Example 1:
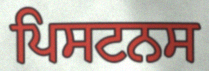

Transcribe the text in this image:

ਪਿਸਟਨਸ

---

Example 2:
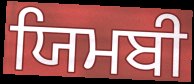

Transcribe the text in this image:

ਯਿਮਬੀ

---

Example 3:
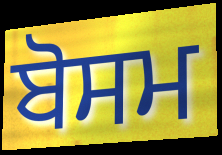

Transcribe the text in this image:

ਬੋਸਮ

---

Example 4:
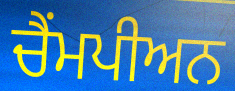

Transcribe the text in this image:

ਚੈਂਮਪੀਅਨ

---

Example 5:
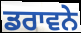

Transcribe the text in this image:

ਡਰਾਵਨੇ